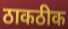
ठाकठीक